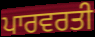
ਪਾਰਵਰਤੀ